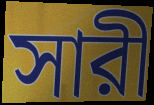
সারী